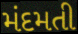
મંદમતી